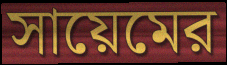
সায়েমের